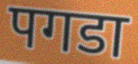
पगडा